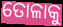
ତୋଳାକୁ